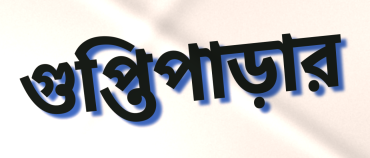
গুপ্তিপাড়ার